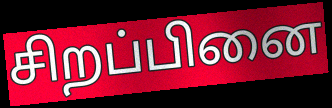
சிறப்பினை